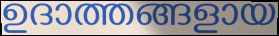
ഉദാത്തങ്ങളായ